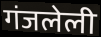
गंजलेली